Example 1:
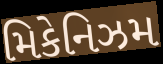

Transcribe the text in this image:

મિકેનિઝમ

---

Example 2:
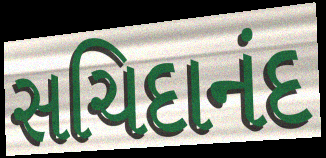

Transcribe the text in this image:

સચિદાનંદ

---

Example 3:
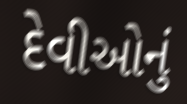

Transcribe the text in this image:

દેવીઓનું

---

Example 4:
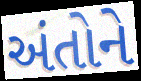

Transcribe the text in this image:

અંતોને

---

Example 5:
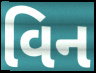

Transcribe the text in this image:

વિન